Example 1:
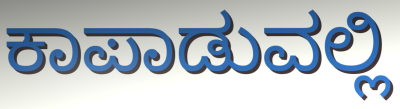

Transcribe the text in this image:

ಕಾಪಾಡುವಲ್ಲಿ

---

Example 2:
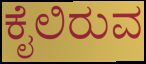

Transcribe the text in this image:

ಕೈಲಿರುವ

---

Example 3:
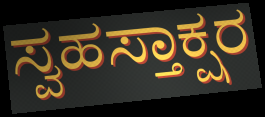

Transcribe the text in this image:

ಸ್ವಹಸ್ತಾಕ್ಷರ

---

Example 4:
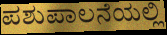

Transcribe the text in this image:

ಪಶುಪಾಲನೆಯಲ್ಲಿ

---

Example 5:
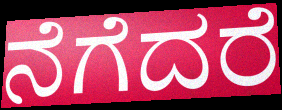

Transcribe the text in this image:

ನೆಗೆದರೆ